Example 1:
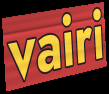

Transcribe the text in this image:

vairi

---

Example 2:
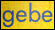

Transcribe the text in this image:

gebe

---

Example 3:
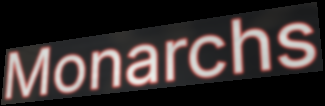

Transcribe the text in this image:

Monarchs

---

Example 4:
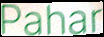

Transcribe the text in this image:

Pahar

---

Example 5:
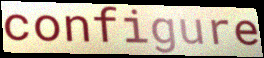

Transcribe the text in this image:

configure